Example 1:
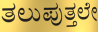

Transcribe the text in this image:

ತಲುಪುತ್ತಲೇ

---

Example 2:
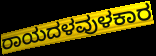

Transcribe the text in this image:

ರಾಯದಳವುಳಕಾರ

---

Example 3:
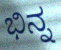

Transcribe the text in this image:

ಭಿನ್ನ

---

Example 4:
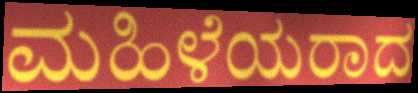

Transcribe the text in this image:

ಮಹಿಳೆಯರಾದ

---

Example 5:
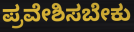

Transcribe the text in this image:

ಪ್ರವೇಶಿಸಬೇಕು